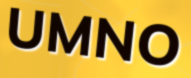
UMNO